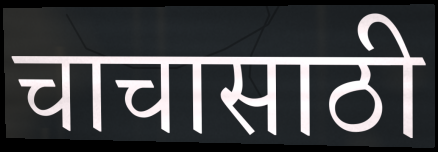
चाचासाठी